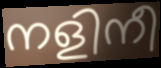
നളിനീ